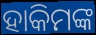
ହାକିମଙ୍କ